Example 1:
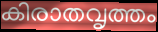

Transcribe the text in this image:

കിരാതവൃത്തം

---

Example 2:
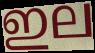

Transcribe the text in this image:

ഇല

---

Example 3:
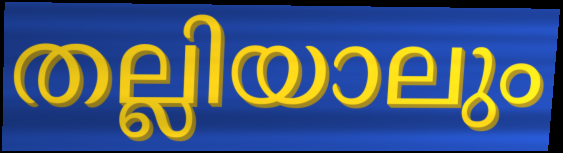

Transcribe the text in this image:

തല്ലിയാലും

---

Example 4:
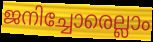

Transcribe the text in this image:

ജനിച്ചോരെല്ലാം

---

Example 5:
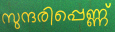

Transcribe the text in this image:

സുന്ദരിപ്പെണ്ണ്